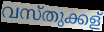
വസ്തുക്കള്